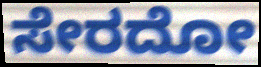
ಸೇರದೋ